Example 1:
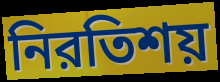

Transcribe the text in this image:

নিরতিশয়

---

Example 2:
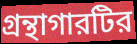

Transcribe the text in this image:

গ্রন্থাগারটির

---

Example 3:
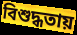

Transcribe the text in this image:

বিশুদ্ধতায়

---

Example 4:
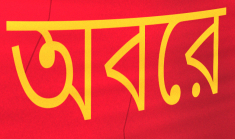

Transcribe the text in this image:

অবরে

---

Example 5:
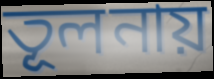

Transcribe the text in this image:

তূলনায়